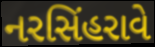
નરસિંહરાવે